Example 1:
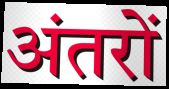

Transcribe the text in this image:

अंतरों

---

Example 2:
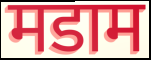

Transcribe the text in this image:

मडाम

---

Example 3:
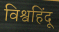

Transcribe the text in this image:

विश्वहिंदू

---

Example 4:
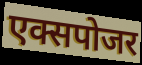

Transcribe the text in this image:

एक्सपोजर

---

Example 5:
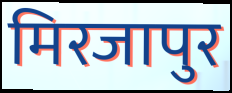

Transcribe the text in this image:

मिरजापुर